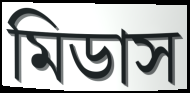
মিডাস